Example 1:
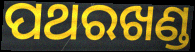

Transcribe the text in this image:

ପଥରଖଣ୍ଡ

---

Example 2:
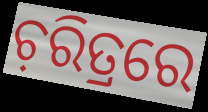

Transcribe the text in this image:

ଚ଼ରିତ୍ରରେ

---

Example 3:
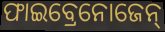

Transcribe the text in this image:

ଫାଇବ୍ରେନୋଜେନ୍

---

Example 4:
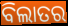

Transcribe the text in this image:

ବିଲାତର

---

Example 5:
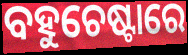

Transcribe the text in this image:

ବହୁଚେଷ୍ଟାରେ